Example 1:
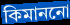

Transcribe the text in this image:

কিমাননো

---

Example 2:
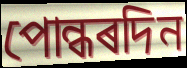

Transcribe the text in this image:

পোন্ধৰদিন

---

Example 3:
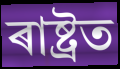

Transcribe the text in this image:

ৰাষ্ট্ৰত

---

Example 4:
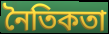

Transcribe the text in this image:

নৈতিকতা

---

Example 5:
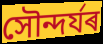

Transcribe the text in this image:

সৌন্দৰ্যৰ